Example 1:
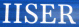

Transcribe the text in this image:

IISER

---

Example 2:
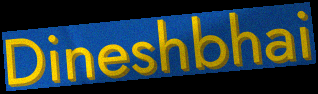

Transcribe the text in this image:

Dineshbhai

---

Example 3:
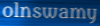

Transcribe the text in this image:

olnswamy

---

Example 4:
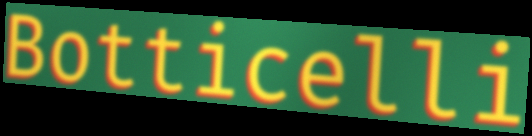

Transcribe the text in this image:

Botticelli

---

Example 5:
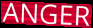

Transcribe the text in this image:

ANGER